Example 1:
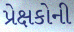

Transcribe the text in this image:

પ્રેક્ષકોની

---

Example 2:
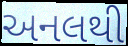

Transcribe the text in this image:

અનલથી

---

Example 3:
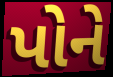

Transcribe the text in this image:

પોને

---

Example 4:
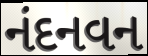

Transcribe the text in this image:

નંદનવન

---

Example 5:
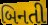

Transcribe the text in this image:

બિનતી